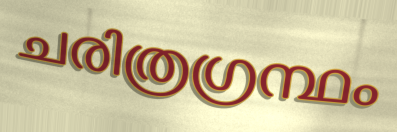
ചരിത്രഗ്രന്ഥം